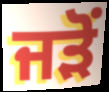
ਜੜੋਂ